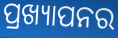
ପ୍ରଖ୍ୟାପନର